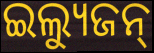
ଇଲ୍ୟୁଜନ୍